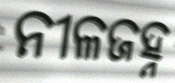
ନୀଳଜହ୍ନ